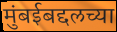
मुंबईबद्दलच्या